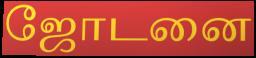
ஜோடனை